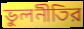
ভুলনীতির